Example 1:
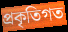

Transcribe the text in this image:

প্ৰকৃতিগত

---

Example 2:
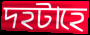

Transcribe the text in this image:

দহটাহে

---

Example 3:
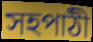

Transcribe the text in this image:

সহপাঠী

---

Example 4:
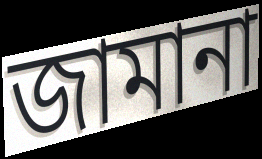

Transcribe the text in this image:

জামানা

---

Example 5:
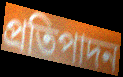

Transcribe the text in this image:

প্ৰতিপাদন